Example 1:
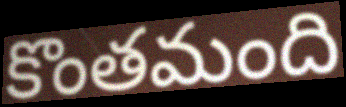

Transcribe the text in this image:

కొంతమంది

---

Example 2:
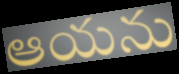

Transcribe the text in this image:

ఆయను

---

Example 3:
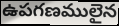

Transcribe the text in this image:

ఉపగణములైన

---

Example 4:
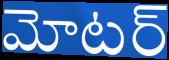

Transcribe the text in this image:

మోటర్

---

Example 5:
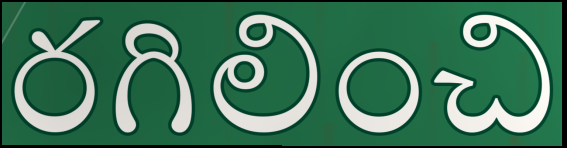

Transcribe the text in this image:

రగిలించి